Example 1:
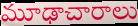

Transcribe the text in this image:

మూఢాచారాలు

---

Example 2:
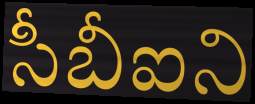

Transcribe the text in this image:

సీబీఐని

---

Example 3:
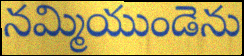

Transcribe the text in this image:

నమ్మియుండెను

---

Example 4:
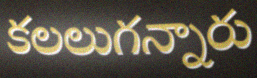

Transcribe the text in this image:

కలలుగన్నారు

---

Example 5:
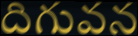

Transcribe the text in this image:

దిగువన